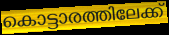
കൊട്ടാരത്തിലേക്ക്